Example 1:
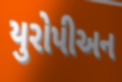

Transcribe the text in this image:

યુરોપીઅન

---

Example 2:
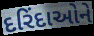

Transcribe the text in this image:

દરિંદાઓને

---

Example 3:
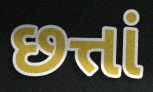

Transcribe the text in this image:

છત્તાં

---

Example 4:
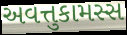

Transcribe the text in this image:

અવત્તુકામસ્સ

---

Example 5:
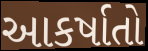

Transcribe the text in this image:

આકર્ષાતો